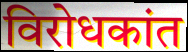
विरोधकांत